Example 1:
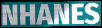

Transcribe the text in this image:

NHANES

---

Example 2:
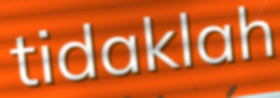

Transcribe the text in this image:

tidaklah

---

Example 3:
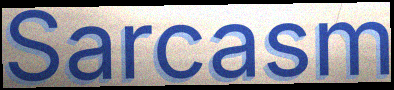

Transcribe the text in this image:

Sarcasm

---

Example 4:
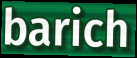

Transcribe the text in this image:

barich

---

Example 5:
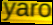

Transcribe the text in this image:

yaro